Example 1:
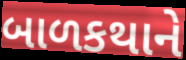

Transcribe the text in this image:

બાળકથાને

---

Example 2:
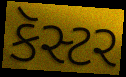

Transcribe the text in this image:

કૅસ્ટર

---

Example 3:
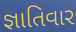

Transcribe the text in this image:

જ્ઞાતિવાર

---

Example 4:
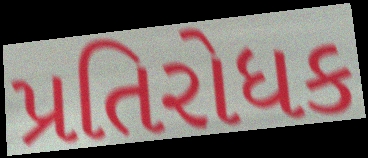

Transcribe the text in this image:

પ્રતિરોધક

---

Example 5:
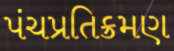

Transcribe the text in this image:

પંચપ્રતિક્રમણ